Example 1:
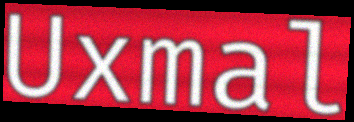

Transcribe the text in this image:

Uxmal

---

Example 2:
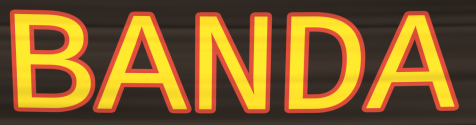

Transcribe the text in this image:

BANDA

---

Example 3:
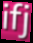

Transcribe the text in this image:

ifj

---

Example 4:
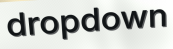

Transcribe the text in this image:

dropdown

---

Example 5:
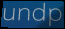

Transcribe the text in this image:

undp